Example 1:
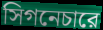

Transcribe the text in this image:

সিগনেচারে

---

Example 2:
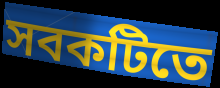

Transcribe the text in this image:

সবকটিতে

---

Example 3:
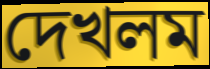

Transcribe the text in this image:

দেখলম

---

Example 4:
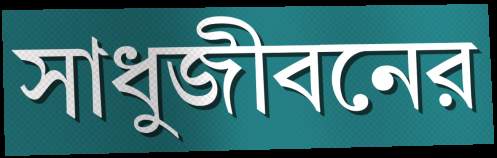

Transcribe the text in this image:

সাধুজীবনের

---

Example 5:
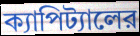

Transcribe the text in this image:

ক্যাপিট্যালের